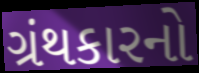
ગ્રંથકારનો